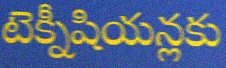
టెక్నీషియన్లకు